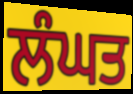
ਲੰਘਤ